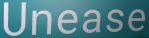
Unease